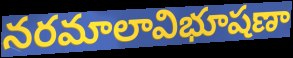
నరమాలావిభూషణా